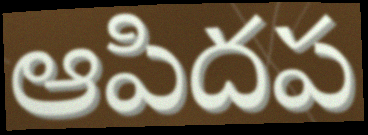
ఆపిదప